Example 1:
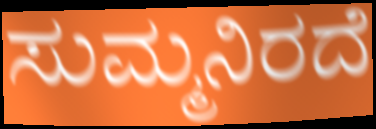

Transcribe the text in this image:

ಸುಮ್ಮನಿರದೆ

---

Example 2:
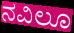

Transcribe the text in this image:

ನವಿಲೂ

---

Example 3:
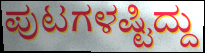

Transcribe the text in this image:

ಪುಟಗಳಷ್ಟಿದ್ದು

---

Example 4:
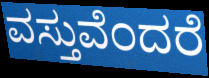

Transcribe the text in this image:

ವಸ್ತುವೆಂದರೆ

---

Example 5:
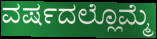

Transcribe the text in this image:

ವರ್ಷದಲ್ಲೊಮ್ಮೆ